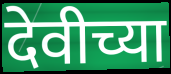
देवीच्या